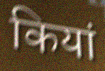
कियां